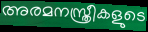
അരമനസ്ത്രീകളുടെ